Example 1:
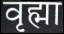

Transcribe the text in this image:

वृह्मा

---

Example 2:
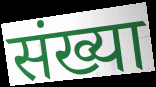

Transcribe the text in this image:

संख्या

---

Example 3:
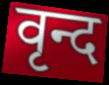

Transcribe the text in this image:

वृन्द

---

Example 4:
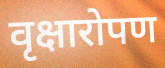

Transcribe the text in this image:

वृक्षारोपण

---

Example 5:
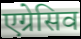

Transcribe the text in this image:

एग्रेसिव